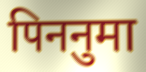
पिननुमा